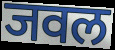
जवल